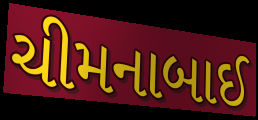
ચીમનાબાઈ